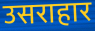
उसराहार